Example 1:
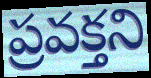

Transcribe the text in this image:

ప్రవక్తని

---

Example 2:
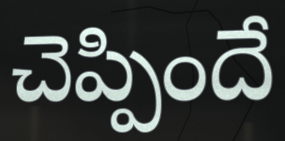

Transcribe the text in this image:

చెప్పిందే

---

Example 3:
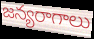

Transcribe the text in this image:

జన్యరాగాలు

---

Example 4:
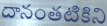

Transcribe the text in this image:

దానంతటికిని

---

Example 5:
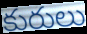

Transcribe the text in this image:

కురులు